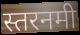
स्तरनमी